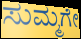
ಸುಮ್ಮಗೇ